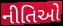
નીતિઓ